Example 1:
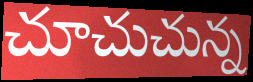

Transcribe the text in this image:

చూచుచున్న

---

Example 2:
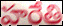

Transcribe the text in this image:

హరేతి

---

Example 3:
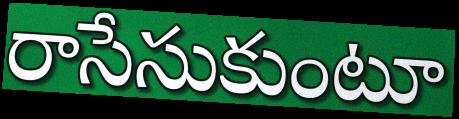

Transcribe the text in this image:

రాసేసుకుంటూ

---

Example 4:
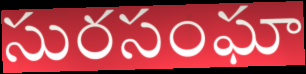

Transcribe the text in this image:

సురసంఘా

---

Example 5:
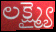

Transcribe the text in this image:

లక్ష్మ్యై